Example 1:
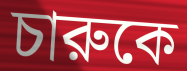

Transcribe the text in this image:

চারুকে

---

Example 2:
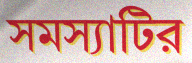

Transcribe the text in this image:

সমস্যাটির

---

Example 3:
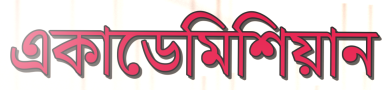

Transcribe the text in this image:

একাডেমিশিয়ান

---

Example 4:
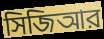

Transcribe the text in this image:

সিজিআর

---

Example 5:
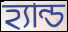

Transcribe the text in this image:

হ্যান্ড